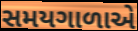
સમયગાળાએ